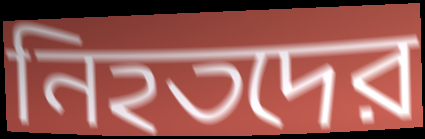
নিহতদের